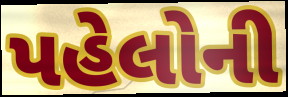
પહેલોની